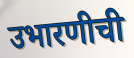
उभारणीची